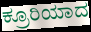
ಕ್ರೂರಿಯಾದ